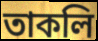
তাকলি